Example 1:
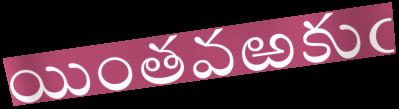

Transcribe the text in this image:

యింతవఱకుఁ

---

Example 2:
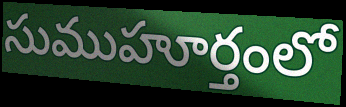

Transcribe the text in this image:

సుముహూర్తంలో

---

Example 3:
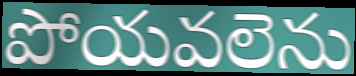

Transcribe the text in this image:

పోయవలెను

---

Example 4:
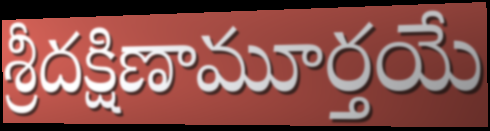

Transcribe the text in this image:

శ్రీదక్షిణామూర్తయే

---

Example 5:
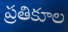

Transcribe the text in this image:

ప్రతికూల